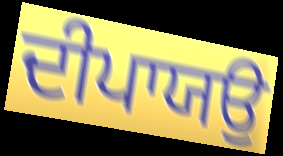
ਦੀਪਾਯਉ